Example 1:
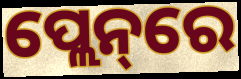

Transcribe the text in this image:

ପ୍ଲେନ୍‌ରେ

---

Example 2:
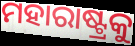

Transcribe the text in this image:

ମହାରାଷ୍ଟ୍ରକୁ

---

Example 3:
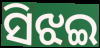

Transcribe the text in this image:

ସିଝଇ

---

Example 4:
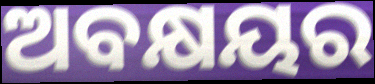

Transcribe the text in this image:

ଅବକ୍ଷୟର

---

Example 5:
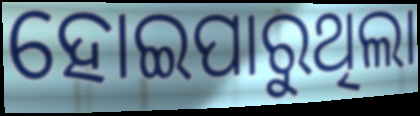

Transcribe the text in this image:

ହୋଇପାରୁଥିଲା